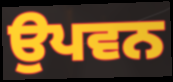
ਉਪਵਨ